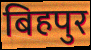
बिहपुर